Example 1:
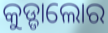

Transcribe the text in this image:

କୁଡ୍ଡାଲୋର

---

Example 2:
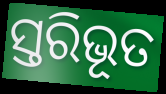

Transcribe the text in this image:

ସ୍ତରିଭୂତ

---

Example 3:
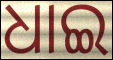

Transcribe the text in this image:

ଧାଇ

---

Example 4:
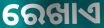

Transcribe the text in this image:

ରେଖାଏ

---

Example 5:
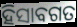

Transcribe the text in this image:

ହିସାବଗତ